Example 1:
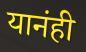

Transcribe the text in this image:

यानंही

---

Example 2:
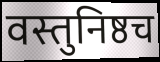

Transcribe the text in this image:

वस्तुनिष्ठच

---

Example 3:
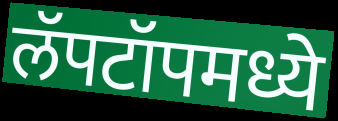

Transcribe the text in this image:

लॅपटॉपमध्ये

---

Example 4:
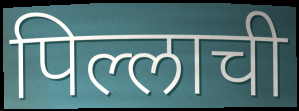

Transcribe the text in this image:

पिल्लाची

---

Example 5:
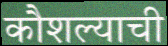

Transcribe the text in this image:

कौशल्याची